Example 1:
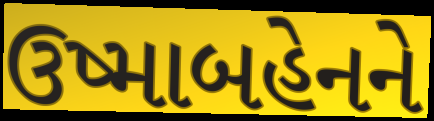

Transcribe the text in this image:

ઉષ્માબહેનને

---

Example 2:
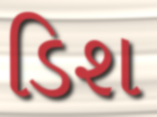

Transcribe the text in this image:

ડિશ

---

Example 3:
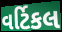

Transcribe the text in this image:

વર્ટિકલ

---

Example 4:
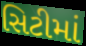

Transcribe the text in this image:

સિટીમાં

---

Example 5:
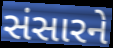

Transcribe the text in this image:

સંસારને